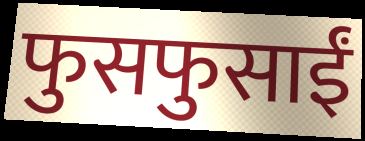
फुसफुसाईं